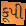
કૂપી